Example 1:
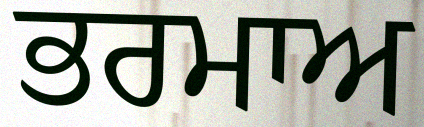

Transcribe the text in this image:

ਭਰਮਾਅ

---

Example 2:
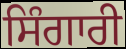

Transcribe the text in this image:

ਸਿੰਗਾਰੀ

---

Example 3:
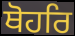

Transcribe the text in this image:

ਥੋਹਰਿ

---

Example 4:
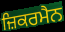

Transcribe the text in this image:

ਜ਼ਿਕਰਮੈਨ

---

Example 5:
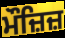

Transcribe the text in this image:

ਮੌਜ਼ਿਜ਼